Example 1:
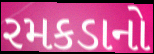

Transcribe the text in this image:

રમકડાનો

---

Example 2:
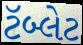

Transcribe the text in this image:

ટૅબ્લેટ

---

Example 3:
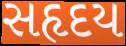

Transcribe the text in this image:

સહૃદય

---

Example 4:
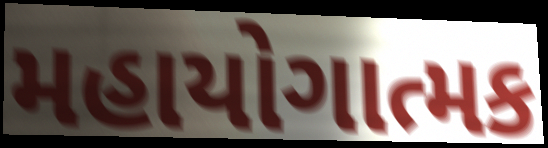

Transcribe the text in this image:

મહાયોગાત્મક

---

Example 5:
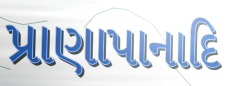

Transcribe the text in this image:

પ્રાણાપાનાદિ